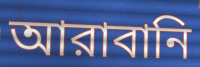
আরাবানি